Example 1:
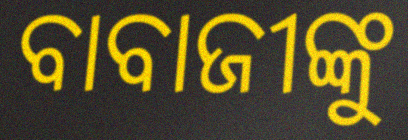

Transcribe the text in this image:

ବାବାଜୀଙ୍କୁ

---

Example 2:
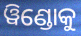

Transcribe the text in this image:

ୱିଣ୍ଡୋକୁ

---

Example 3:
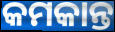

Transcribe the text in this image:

କମକାନ୍ତ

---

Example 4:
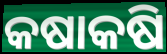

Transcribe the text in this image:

କଷାକଷି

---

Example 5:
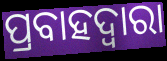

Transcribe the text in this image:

ପ୍ରବାହଦ୍ୱାରା